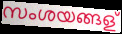
സംശയങ്ങള്